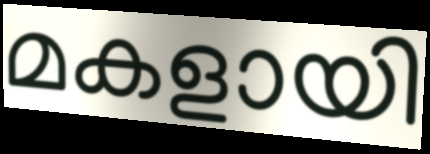
മകളായി